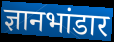
ज्ञानभांडार